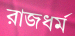
রাজধর্ম